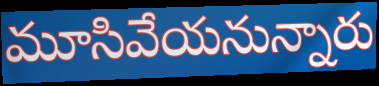
మూసివేయనున్నారు